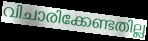
വിചാരിക്കേണ്ടതില്ല